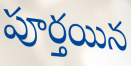
పూర్తయిన